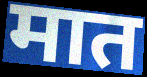
मात